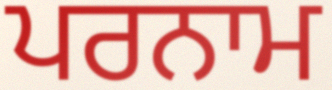
ਪਰਨਾਮ